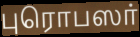
புரொபஸர்